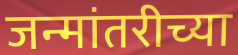
जन्मांतरीच्या